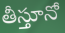
తీస్తూనో